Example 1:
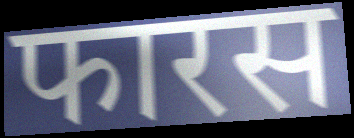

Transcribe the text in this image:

फारस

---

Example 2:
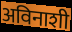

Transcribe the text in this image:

अविनाशी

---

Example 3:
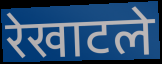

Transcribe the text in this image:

रेखाटले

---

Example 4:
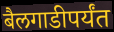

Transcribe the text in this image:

बैलगाडीपर्यंत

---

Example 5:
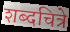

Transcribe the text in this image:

शब्दचित्रे